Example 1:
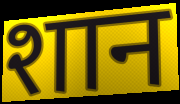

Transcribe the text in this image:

शान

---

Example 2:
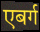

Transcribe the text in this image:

एबर्ग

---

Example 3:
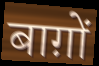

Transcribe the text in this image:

बाग़ों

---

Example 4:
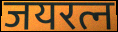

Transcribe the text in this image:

जयरत्न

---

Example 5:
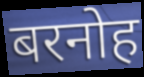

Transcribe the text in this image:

बरनोह